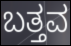
ಬತ್ತವ